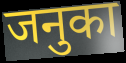
जनुका